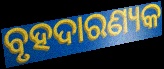
ବୃହଦାରଣ୍ୟକ